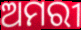
ଅମରୀ